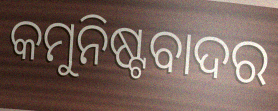
କମୁନିଷ୍ଟବାଦର